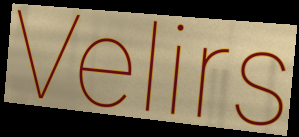
Velirs